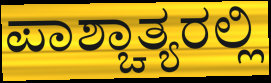
ಪಾಶ್ಚಾತ್ಯರಲ್ಲಿ